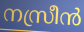
നസ്രീൻ